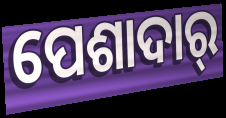
ପେଶାଦାର୍